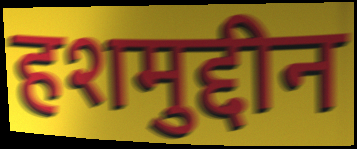
हशमुद्दीन